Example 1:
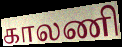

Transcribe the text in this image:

காலணி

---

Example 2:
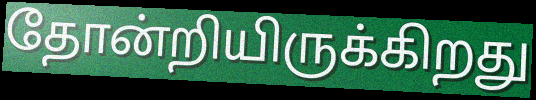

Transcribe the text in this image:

தோன்றியிருக்கிறது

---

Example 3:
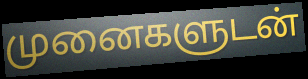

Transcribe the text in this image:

முனைகளுடன்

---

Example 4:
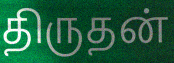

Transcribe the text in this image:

திருதன்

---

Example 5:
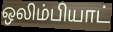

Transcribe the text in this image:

ஒலிம்பியாட்